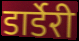
डार्डेरी